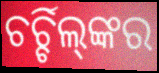
ଚର୍ଚ୍ଚିଲ୍‌ଙ୍କର